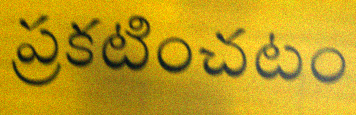
ప్రకటించటం